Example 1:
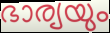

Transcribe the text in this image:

ഭാര്യയും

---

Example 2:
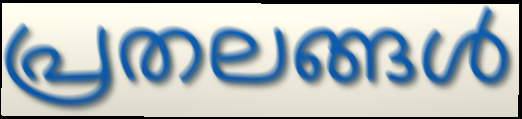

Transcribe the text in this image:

പ്രതലങ്ങൾ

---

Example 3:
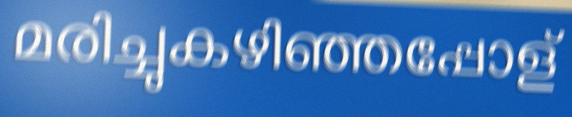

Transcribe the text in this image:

മരിച്ചുകഴിഞ്ഞപ്പോള്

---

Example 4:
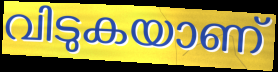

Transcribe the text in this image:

വിടുകയാണ്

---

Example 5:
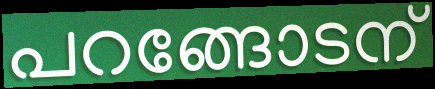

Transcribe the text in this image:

പറങ്ങോടന്